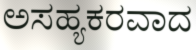
ಅಸಹ್ಯಕರವಾದ